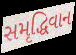
સમૃદ્ધિવાન